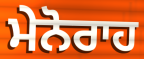
ਮੇਨੋਰਾਹ